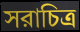
সরাচিত্র